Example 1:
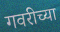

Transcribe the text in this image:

गवरीच्या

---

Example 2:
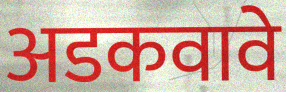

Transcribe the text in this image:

अडकवावे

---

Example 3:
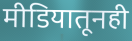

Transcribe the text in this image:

मीडियातूनही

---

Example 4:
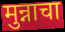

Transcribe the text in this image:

मुन्नाचा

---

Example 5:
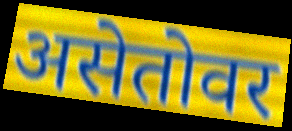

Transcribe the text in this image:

असेतोवर